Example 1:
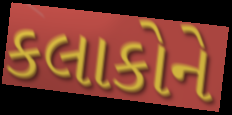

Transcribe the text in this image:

કલાકોને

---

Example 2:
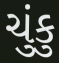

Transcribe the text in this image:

ચુંકુ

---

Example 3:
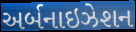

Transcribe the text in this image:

અર્બનાઇઝેશન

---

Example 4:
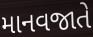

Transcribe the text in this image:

માનવજાતે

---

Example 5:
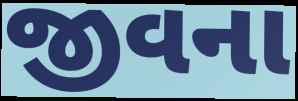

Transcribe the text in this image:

જીવના